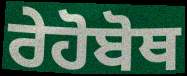
ਰੇਹੋਬੋਥ